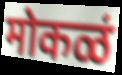
मोकळं